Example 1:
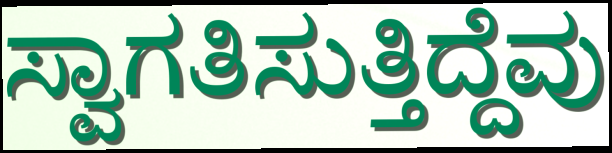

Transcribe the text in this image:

ಸ್ವಾಗತಿಸುತ್ತಿದ್ದೆವು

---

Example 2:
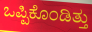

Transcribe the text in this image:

ಒಪ್ಪಿಕೊಂಡಿತ್ತು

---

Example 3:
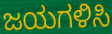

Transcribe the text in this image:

ಜಯಗಳಿಸಿ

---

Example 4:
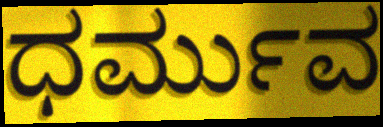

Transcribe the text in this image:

ಧರ್ಮುವ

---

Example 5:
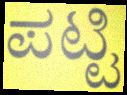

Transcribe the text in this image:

ಪಟ್ಟಿ